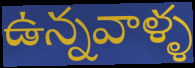
ఉన్నవాళ్ళ